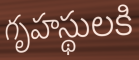
గృహస్థులకి